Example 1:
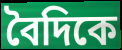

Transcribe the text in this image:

বৈদিকে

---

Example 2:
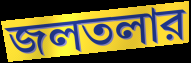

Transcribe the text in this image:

জলতলার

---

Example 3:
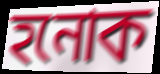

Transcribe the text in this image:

হনোক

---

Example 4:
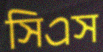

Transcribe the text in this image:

সিএস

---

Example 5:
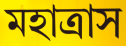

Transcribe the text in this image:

মহাত্রাস